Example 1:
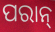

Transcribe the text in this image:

ପରାନ୍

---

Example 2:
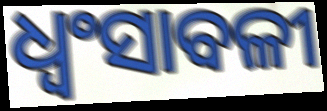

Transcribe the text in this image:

ଧ୍ୱଂସାବଳୀ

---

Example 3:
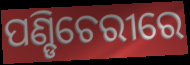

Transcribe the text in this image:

ପଣ୍ଡିଚେରୀରେ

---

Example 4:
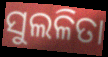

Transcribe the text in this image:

ସୁଲଳିତା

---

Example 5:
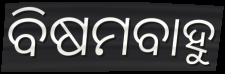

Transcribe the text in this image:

ବିଷମବାହୁ